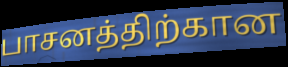
பாசனத்திற்கான